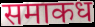
समाकध